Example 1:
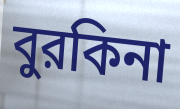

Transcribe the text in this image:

বুরকিনা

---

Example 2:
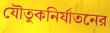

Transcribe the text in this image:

যৌতুকনির্যাতনের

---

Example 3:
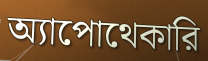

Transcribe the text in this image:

অ্যাপোথেকারি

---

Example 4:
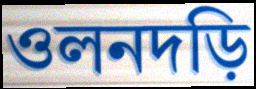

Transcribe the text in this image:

ওলনদড়ি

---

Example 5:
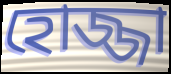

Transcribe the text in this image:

হোজ্জা